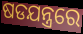
ଷଡଯନ୍ତ୍ରରେ